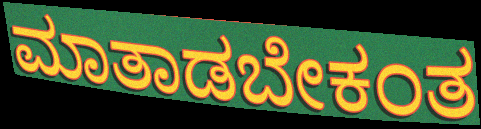
ಮಾತಾಡಬೇಕಂತ